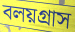
বলয়গ্রাস